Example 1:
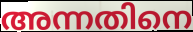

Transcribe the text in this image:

അന്നതിനെ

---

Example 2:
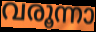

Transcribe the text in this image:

വരൂന്നാ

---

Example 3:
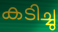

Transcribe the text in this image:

കടിച്ചു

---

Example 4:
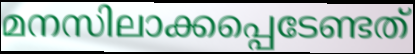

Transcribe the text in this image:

മനസിലാക്കപ്പെടേണ്ടത്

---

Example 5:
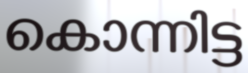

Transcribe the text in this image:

കൊന്നിട്ട